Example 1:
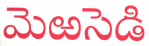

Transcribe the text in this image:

మెఱసెడి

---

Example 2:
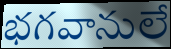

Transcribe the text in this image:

భగవానులే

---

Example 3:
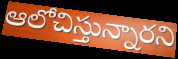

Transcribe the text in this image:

ఆలోచిస్తున్నారని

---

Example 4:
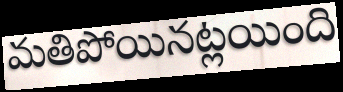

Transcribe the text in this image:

మతిపోయినట్లయింది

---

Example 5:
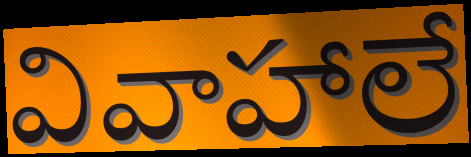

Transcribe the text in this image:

వివాహాలే